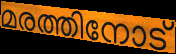
മരത്തിനോട്